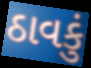
ઠાવકું